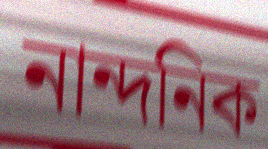
নান্দনিক